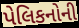
પેલિકનોની